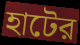
হাটের